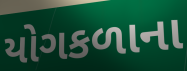
યોગકળાના